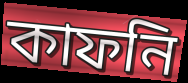
কাফনি